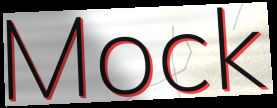
Mock